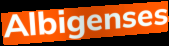
Albigenses